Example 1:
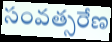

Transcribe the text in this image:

సంవత్సరేణ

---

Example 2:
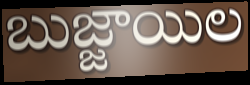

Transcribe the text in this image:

బుజ్జాయిల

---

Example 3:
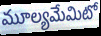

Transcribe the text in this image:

మూల్యమేమిటో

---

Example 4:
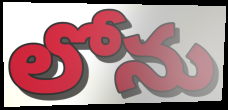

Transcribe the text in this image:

లోను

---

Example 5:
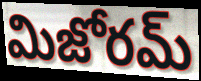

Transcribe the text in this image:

మిజోరమ్